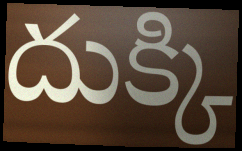
దుక్కి